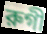
রুগী